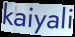
kaiyali